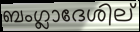
ബംഗ്ലാദേശില്